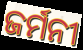
ଜର୍ମନୀ